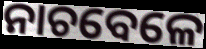
ନାଚବେଳେ